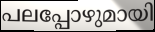
പലപ്പോഴുമായി